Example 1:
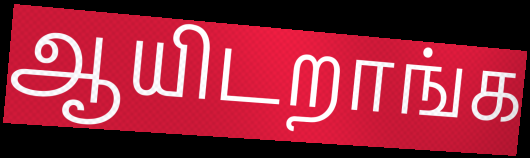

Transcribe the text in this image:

ஆயிடறாங்க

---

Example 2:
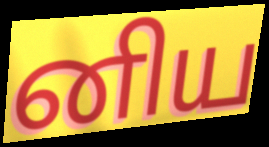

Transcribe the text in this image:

னிய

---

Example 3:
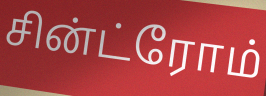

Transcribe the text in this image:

சின்ட்ரோம்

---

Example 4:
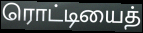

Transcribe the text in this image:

ரொட்டியைத்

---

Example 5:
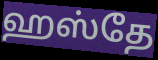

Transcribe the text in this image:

ஹஸ்தே